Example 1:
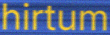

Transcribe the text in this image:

hirtum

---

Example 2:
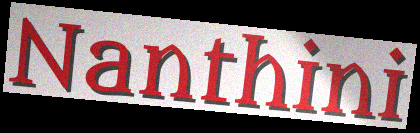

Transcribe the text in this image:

Nanthini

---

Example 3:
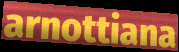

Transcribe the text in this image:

arnottiana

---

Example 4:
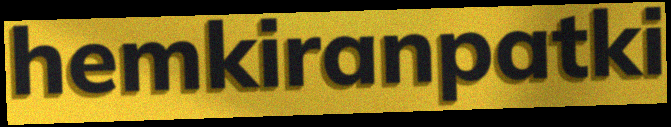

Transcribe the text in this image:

hemkiranpatki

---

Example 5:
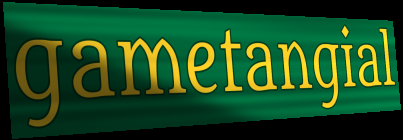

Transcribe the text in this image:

gametangial